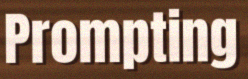
Prompting